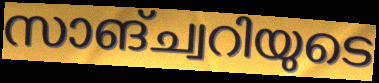
സാങ്ച്വറിയുടെ